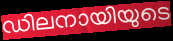
ഡിലനായിയുടെ